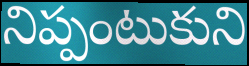
నిప్పంటుకుని